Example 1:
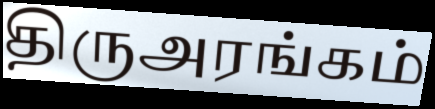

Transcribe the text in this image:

திருஅரங்கம்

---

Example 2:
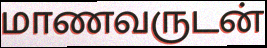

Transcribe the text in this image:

மாணவருடன்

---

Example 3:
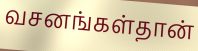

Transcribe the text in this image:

வசனங்கள்தான்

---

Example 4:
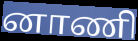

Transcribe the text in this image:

னாணி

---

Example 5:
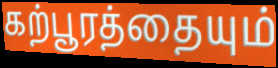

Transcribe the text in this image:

கற்பூரத்தையும்